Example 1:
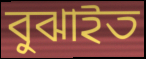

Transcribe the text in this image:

বুঝাইত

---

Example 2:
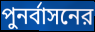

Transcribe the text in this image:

পুনর্বাসনের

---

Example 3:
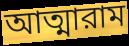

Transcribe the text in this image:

আত্মারাম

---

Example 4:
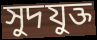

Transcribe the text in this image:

সুদযুক্ত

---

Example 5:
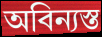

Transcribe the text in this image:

অবিন্যস্ত